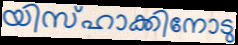
യിസ്ഹാക്കിനോടു